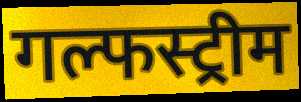
गल्फस्ट्रीम